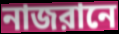
নাজরানে